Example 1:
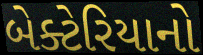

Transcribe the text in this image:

બેક્ટેરિયાનો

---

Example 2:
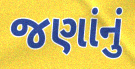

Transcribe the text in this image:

જણાંનું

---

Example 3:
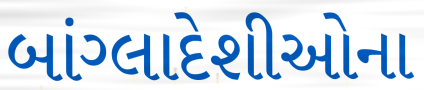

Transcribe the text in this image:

બાંગ્લાદેશીઓના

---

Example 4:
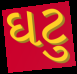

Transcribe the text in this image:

ઘટુ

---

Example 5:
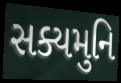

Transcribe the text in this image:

સક્યમુનિ